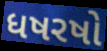
ધષરષો